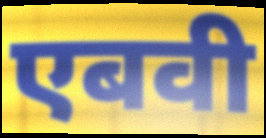
एबवी